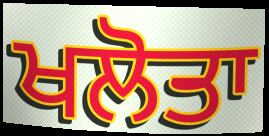
ਖਲੋਤਾ